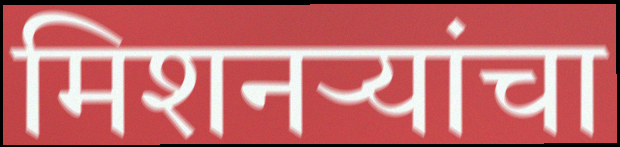
मिशनऱ्यांचा